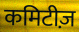
कमिटीज़